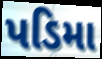
પડિમા